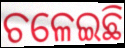
ଚଳେଇଛି